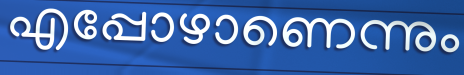
എപ്പോഴാണെന്നും